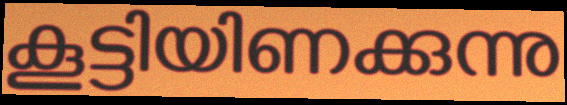
കൂട്ടിയിണക്കുന്നു